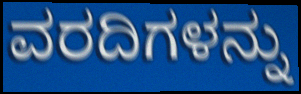
ವರದಿಗಳನ್ನು